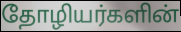
தோழியர்களின்